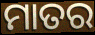
ମାତର